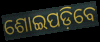
ଶୋଇପଡ଼ିବେ